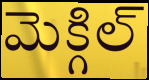
మెక్గిల్